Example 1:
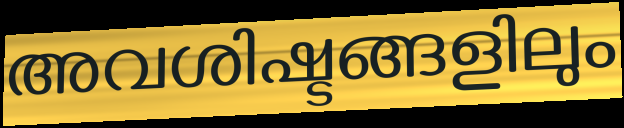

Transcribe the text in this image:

അവശിഷ്ടങ്ങളിലും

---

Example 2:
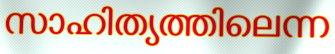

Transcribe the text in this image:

സാഹിത്യത്തിലെന്ന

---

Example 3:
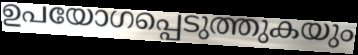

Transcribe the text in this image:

ഉപയോഗപ്പെടുത്തുകയും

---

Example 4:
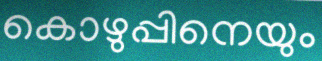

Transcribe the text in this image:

കൊഴുപ്പിനെയും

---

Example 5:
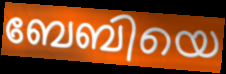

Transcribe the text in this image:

ബേബിയെ